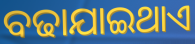
ବଢାଯାଇଥାଏ